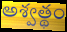
అశ్వత్థం